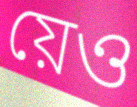
য়েও